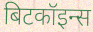
बिटकॉइन्स